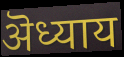
ऄध्याय